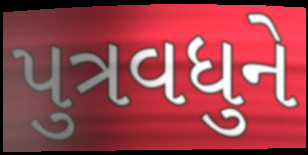
પુત્રવધુને